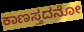
ಕಾಣಸ್ತದನೋ